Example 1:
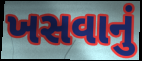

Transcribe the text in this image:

ખસવાનું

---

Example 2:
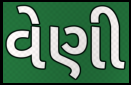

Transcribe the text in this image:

વેણી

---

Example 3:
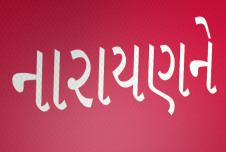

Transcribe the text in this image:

નારાયણને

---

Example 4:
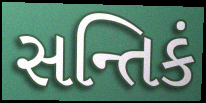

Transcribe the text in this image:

સન્તિકં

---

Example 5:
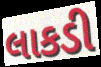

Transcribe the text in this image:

લાકડી